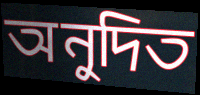
অনুদিত